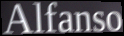
Alfanso